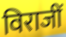
विराजीं